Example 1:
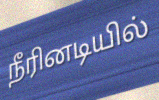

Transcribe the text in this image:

நீரினடியில்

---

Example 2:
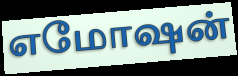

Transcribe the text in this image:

எமோஷன்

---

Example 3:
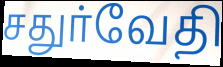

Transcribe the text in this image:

சதுர்வேதி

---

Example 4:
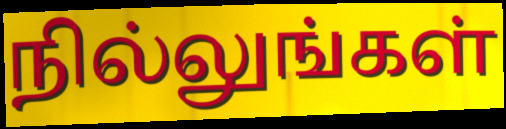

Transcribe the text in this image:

நில்லுங்கள்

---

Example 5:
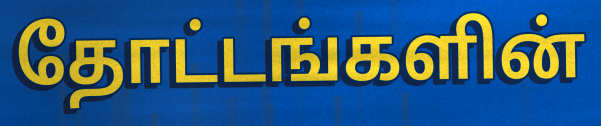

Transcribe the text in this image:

தோட்டங்களின்